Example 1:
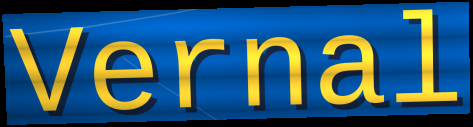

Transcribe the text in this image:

Vernal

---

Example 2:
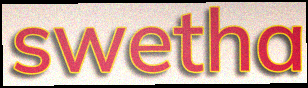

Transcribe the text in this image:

swetha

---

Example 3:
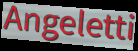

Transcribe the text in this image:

Angeletti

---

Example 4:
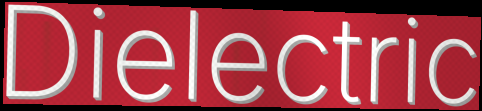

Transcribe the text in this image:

Dielectric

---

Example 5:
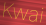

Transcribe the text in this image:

Kwai